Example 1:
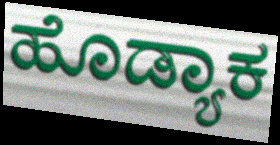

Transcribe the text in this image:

ಹೊಡ್ಯಾಕ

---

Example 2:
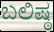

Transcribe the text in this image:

ಬಲಿಷ್ಠ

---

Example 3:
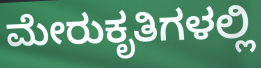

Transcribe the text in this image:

ಮೇರುಕೃತಿಗಳಲ್ಲಿ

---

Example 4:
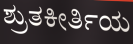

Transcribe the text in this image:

ಶ್ರುತಕೀರ್ತಿಯ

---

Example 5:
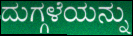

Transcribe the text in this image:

ದುಗ್ಗಳೆಯನ್ನು